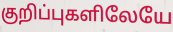
குறிப்புகளிலேயே